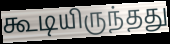
கூடியிருந்தது